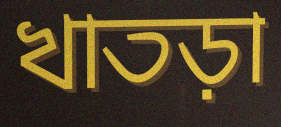
খাতড়া